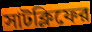
সাটক্লিফের